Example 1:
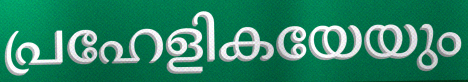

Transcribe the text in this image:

പ്രഹേളികയേയും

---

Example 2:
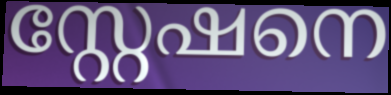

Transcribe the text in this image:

സ്റ്റേഷനെ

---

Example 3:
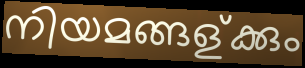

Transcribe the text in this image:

നിയമങ്ങള്ക്കും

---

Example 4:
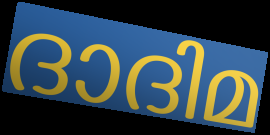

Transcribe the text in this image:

ദാദിമ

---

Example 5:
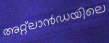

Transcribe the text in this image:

അറ്റ്ലാൻഡയിലെ